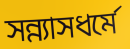
সন্ন্যাসধর্মে